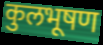
कुलभूषण